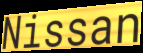
Nissan